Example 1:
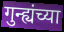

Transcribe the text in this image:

गुन्ह्यंच्या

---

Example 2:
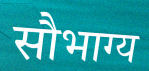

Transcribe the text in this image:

सौभाग्य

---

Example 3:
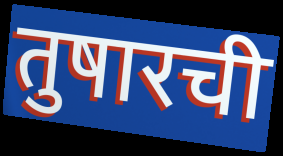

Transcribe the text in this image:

तुषारची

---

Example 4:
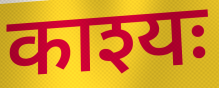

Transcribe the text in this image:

काश्यः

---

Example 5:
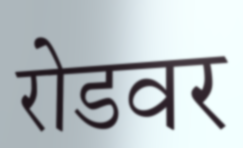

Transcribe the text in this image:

रोडवर